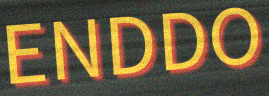
ENDDO